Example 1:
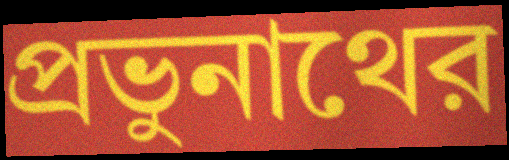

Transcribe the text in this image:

প্রভুনাথের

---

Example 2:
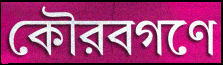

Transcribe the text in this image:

কৌরবগণে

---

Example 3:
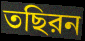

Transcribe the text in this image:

তছিরন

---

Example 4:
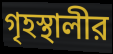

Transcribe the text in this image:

গৃহস্থালীর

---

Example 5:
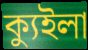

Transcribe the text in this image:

ক্যুইলা